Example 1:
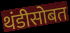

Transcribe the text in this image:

थंडीसोबत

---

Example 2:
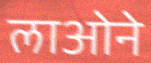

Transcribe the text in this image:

लाओने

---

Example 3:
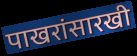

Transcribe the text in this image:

पाखरांसारखी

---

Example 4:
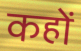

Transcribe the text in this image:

कहों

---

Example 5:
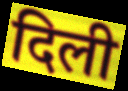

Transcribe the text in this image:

दिली